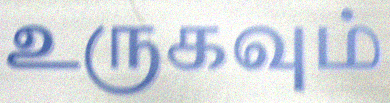
உருகவும்